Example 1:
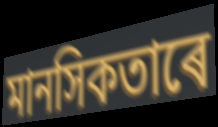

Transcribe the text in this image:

মানসিকতাৰে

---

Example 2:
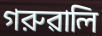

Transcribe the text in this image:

গৰুৱালি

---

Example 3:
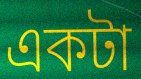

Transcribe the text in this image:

একটা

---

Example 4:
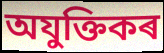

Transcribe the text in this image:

অযুক্তিকৰ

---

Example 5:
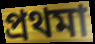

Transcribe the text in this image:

প্ৰথমা